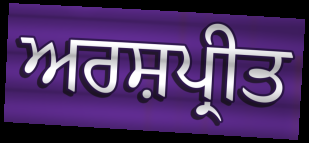
ਅਰਸ਼ਪ੍ਰੀਤ